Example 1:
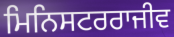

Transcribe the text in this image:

ਮਿਨਿਸਟਰਰਾਜੀਵ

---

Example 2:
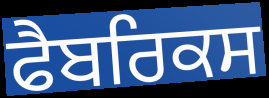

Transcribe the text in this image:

ਫੈਬਰਿਕਸ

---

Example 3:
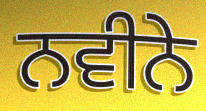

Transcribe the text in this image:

ਨਵੀਨੇ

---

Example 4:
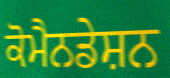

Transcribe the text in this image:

ਕੋਮੈਨਡੇਸ਼ਨ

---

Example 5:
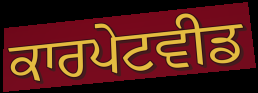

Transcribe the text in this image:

ਕਾਰਪੇਟਵੀਡ